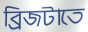
ব্রিজটাতে